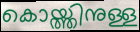
കൊയ്ത്തിനുള്ള